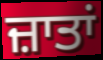
ਜ਼ਾਤਾਂ